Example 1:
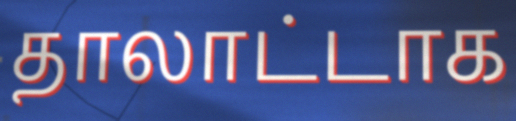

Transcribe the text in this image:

தாலாட்டாக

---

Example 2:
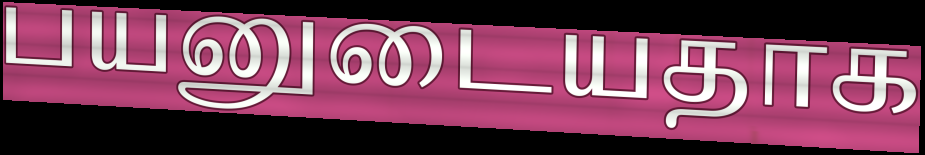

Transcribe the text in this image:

பயனுடையதாக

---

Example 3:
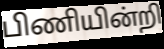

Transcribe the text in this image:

பிணியின்றி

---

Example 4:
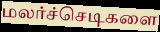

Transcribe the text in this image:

மலர்ச்செடிகளை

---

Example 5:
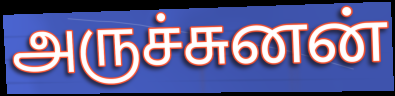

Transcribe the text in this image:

அருச்சுனன்